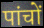
पांचों